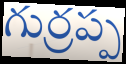
గుర్రప్ప